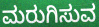
ಮರುಗಿಸುವ